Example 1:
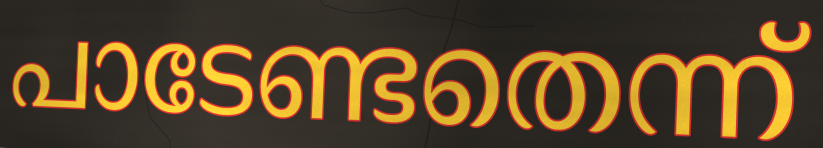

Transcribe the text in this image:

പാടേണ്ടതെന്ന്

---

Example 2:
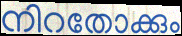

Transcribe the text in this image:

നിറതോക്കും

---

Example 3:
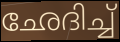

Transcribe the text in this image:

ഛേദിച്ച്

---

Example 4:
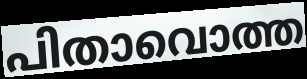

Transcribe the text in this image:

പിതാവൊത്ത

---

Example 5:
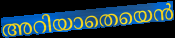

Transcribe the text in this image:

അറിയാതെയെൻ